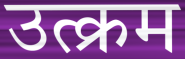
उत्क्रम